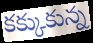
కక్కుకున్న